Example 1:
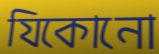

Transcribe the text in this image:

যিকোনো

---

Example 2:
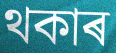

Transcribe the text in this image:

থকাৰ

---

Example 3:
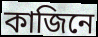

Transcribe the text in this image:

কাজিনে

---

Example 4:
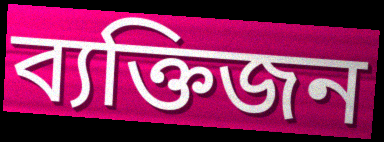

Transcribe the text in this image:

ব্যক্তিজন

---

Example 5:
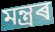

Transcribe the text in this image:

মন্ত্ৰৰ